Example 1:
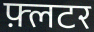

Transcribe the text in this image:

फ़्लटर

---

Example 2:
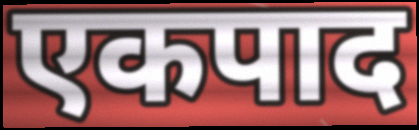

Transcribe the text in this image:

एकपाद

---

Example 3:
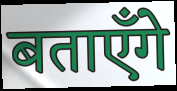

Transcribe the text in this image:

बताएँगे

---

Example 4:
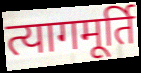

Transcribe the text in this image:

त्यागमूर्ति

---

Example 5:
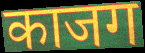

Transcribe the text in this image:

काजग